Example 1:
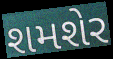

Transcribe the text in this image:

શમશેર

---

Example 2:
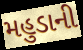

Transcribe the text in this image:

મહુડાની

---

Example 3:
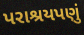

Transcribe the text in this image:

પરાશ્રયપણું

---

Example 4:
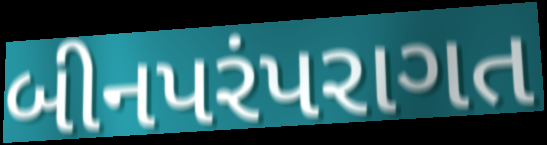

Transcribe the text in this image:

બીનપરંપરાગત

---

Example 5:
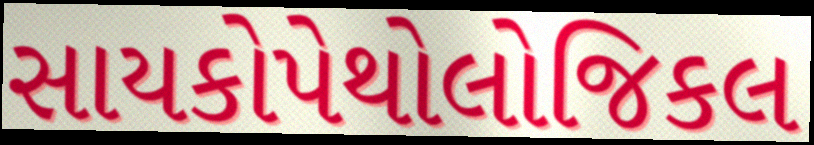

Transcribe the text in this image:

સાયકોપેથોલોજિકલ